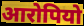
आरोपियो